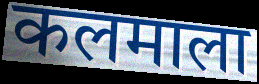
कलमाला